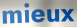
mieux